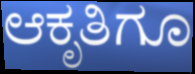
ಆಕೃತಿಗೂ